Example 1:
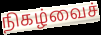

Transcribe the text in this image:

நிகழ்வைச்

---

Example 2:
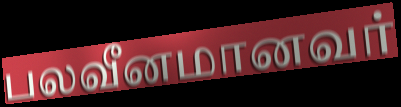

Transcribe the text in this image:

பலவீனமானவர்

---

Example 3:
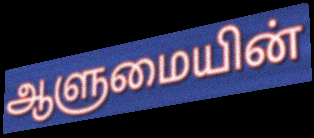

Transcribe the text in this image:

ஆளுமையின்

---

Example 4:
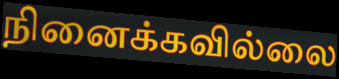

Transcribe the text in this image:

நினைக்கவில்லை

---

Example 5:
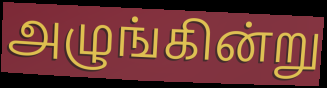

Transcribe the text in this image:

அழுங்கின்று